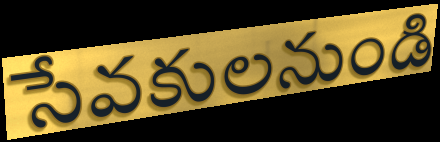
సేవకులనుండి